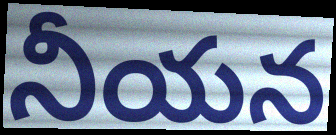
నీయన